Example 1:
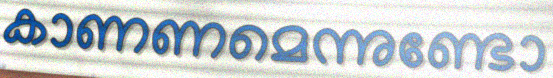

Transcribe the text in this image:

കാണണമെന്നുണ്ടോ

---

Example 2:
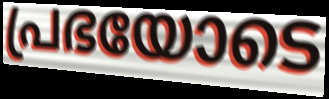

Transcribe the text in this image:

പ്രഭയോടെ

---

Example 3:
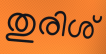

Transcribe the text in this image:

തുരിശ്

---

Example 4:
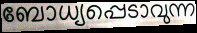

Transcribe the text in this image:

ബോധ്യപ്പെടാവുന്ന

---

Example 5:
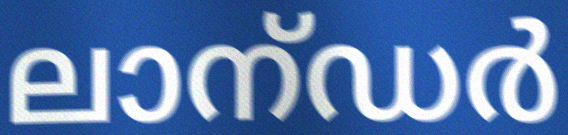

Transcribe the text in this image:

ലാന്ഡർ